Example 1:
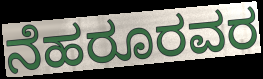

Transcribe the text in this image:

ನೆಹರೂರವರ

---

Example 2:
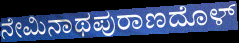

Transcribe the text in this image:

ನೇಮಿನಾಥಪುರಾಣದೊಳ್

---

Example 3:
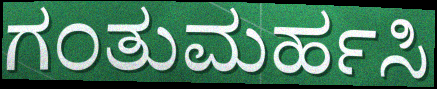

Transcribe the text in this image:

ಗಂತುಮರ್ಹಸಿ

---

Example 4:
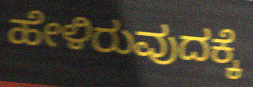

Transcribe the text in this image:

ಹೇಳಿರುವುದಕ್ಕೆ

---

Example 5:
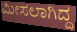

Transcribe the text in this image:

ಮೀಸಲಾಗಿದ್ದ